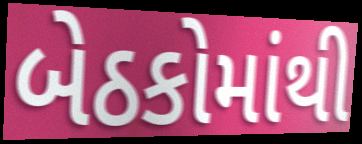
બેઠકોમાંથી